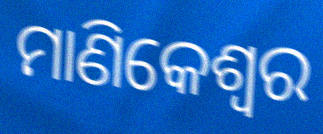
ମାଣିକେଶ୍ଵର